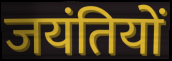
जयंतियों